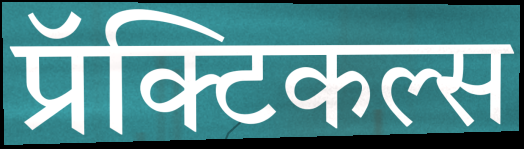
प्रॅक्टिकल्स